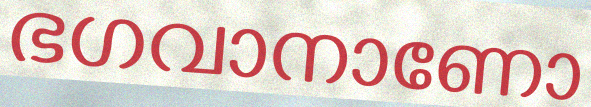
ഭഗവാനാണോ